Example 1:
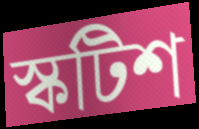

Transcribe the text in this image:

স্কটিশ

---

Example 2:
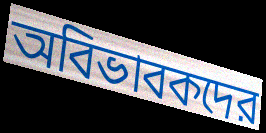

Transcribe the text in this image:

অবিভাবকদের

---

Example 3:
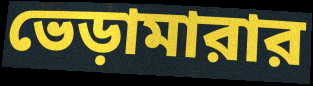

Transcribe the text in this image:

ভেড়ামারার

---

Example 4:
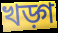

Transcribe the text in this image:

খড়্গ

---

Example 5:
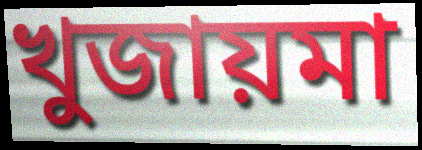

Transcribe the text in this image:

খুজায়মা